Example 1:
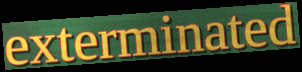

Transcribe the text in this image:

exterminated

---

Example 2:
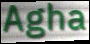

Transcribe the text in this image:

Agha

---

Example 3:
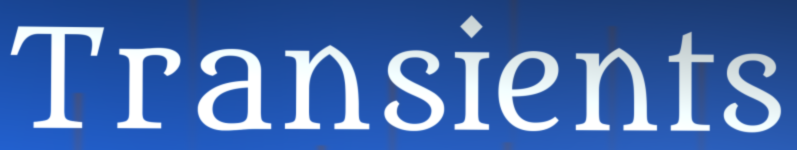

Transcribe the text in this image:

Transients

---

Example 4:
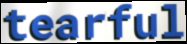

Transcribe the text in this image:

tearful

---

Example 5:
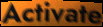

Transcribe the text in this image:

Activate